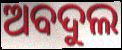
ଅବଦୁଲ